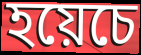
হয়েচে